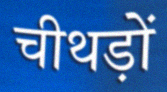
चीथड़ों